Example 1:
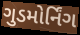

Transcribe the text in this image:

ગુડમોર્નિંગ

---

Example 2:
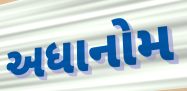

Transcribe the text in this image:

અધાનોમ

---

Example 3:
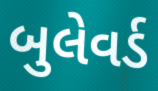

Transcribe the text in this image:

બુલેવર્ડ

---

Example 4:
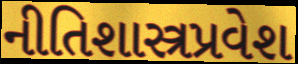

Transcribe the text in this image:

નીતિશાસ્ત્રપ્રવેશ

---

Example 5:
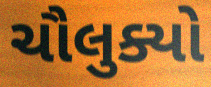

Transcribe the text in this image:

ચૌલુક્યો